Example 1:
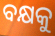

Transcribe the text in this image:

ବକ୍ଷକୁ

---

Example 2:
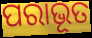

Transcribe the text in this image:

ପରାଭୂତ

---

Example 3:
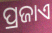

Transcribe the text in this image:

ପ୍ରଜାଏ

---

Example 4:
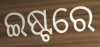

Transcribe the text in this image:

ଇଷ୍ଟରେ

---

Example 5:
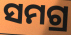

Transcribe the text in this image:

ସମଗ୍ର